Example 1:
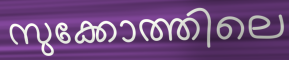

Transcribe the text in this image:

സുക്കോത്തിലെ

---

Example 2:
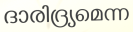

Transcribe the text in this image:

ദാരിദ്ര്യമെന്ന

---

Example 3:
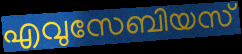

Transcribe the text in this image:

എവുസേബിയസ്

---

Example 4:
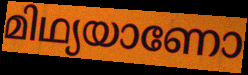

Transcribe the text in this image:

മിഥ്യയാണോ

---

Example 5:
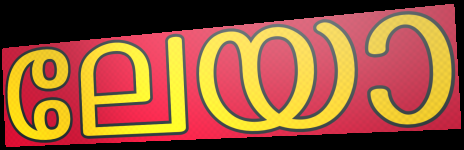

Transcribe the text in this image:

ലേയാ